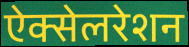
ऐक्सेलरेशन